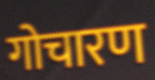
गोचारण